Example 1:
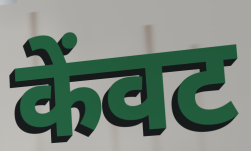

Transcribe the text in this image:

केंवट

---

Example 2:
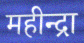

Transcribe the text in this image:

महीन्द्रा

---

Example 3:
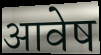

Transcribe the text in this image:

आवेष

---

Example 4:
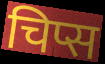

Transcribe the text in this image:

चिप्स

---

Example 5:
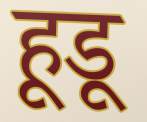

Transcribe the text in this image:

हूडू